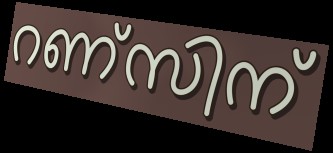
റണ്സിന്